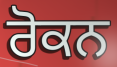
ਰੋਕਨ